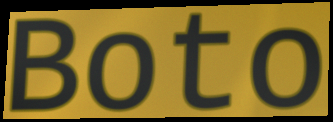
Boto